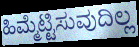
ಹಿಮ್ಮೆಟ್ಟಿಸುವುದಿಲ್ಲ